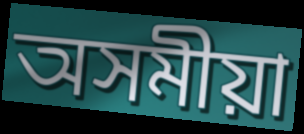
অসমীয়া